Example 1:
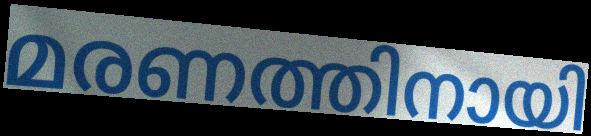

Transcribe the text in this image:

മരണത്തിനായി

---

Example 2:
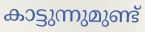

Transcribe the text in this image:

കാട്ടുന്നുമുണ്ട്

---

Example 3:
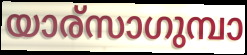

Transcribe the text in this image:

യാര്സാഗുമ്പാ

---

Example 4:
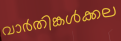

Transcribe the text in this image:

വാർതിങ്കൾക്കല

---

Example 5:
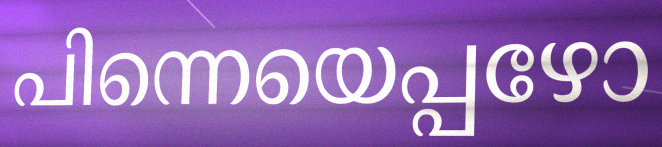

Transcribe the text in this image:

പിന്നെയെപ്പഴോ